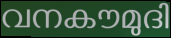
വനകൗമുദി